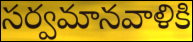
సర్వమానవాళికి